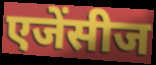
एजेंसीज